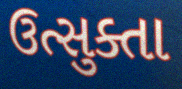
ઉત્સુક્તા